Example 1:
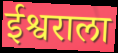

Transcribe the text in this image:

ईश्वराला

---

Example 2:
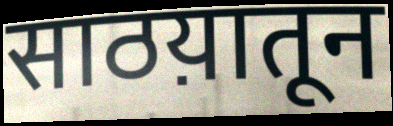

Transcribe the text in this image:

साठय़ातून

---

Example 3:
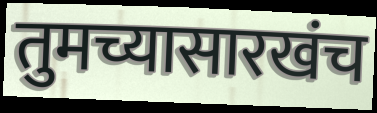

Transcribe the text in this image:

तुमच्यासारखंच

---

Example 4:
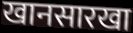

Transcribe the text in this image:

खानसारखा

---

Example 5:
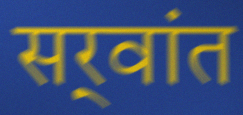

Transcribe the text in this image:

सर्वांत